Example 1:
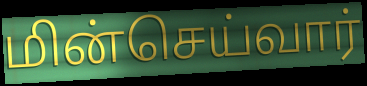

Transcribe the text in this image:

மின்செய்வார்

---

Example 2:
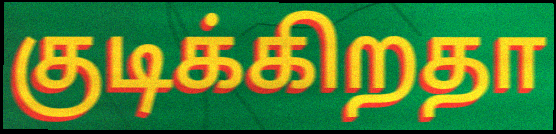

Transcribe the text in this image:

குடிக்கிறதா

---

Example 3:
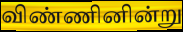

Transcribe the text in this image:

விண்ணினின்று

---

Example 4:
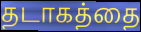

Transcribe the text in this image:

தடாகத்தை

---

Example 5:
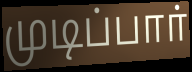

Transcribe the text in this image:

முடிப்பார்